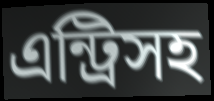
এন্ট্রিসহ